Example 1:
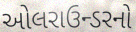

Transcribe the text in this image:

ઓલરાઉન્ડરનો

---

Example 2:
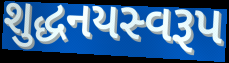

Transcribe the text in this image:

શુદ્ધનયસ્વરૂપ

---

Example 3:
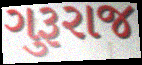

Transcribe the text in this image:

ગુરૂરાજ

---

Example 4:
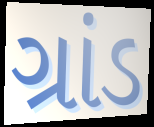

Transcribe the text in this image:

ગ્રાંડ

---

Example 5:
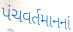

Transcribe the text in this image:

પંચવર્તમાનનાં